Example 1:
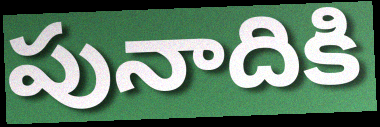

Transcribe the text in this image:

పునాదికి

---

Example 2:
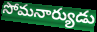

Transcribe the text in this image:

సోమనార్యుడు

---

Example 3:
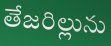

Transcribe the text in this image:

తేజరిల్లును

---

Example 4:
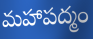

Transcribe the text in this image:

మహాపద్మం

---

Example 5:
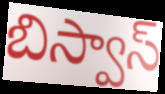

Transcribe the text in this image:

బిస్వాస్